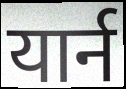
यार्न